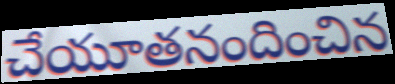
చేయూతనందించిన